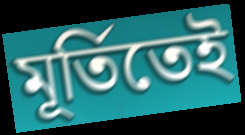
মূর্তিতেই